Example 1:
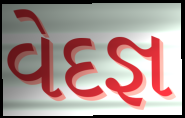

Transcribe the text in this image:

વેદજ્ઞ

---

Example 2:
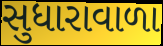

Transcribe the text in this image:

સુધારાવાળા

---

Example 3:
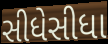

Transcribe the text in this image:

સીધેસીધા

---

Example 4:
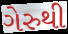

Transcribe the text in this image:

ગેરુથી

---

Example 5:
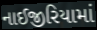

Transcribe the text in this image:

નાઈજીરિયામાં